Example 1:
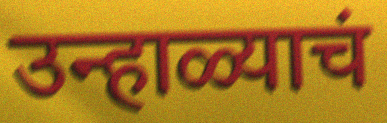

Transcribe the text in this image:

उन्हाळ्याचं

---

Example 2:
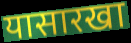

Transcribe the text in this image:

यासारखा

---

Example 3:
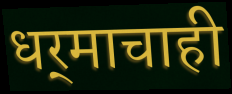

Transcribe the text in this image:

धर्माचाही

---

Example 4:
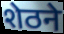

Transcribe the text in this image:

शेठने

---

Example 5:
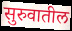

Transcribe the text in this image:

सुरुवातील